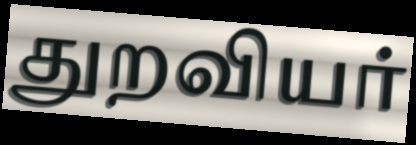
துறவியர்